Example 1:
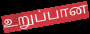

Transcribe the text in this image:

உறுப்பான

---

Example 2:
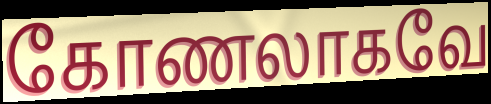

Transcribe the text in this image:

கோணலாகவே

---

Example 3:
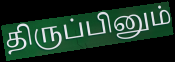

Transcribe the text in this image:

திருப்பினும்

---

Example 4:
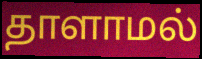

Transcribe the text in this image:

தாளாமல்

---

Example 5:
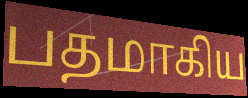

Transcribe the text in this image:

பதமாகிய